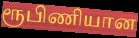
ரூபிணியான